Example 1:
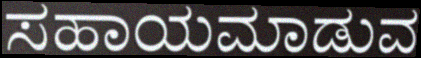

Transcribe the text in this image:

ಸಹಾಯಮಾಡುವ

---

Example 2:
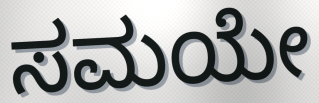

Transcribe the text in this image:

ಸಮಯೇ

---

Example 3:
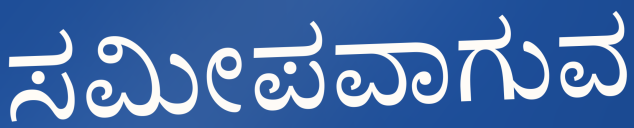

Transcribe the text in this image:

ಸಮೀಪವಾಗುವ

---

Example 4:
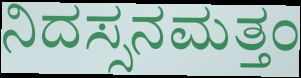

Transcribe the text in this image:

ನಿದಸ್ಸನಮತ್ತಂ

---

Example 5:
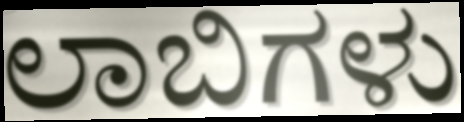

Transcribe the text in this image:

ಲಾಬಿಗಳು